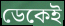
ডেকেই